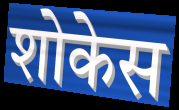
शोकेस